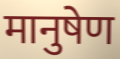
मानुषेण